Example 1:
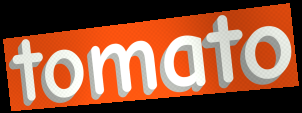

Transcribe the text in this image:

tomato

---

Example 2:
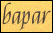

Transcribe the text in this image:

bapar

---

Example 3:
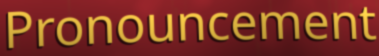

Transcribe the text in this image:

Pronouncement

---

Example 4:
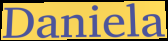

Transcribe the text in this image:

Daniela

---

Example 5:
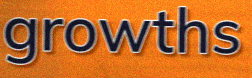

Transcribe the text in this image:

growths